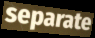
separate